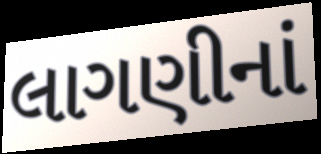
લાગણીનાં